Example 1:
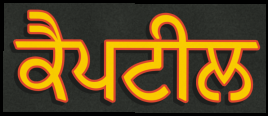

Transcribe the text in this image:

ਕੈਪਟੀਲ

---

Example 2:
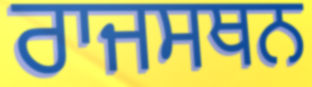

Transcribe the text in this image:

ਰਾਜਸਥਨ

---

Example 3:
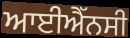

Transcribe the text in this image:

ਆਈਐੱਨਸੀ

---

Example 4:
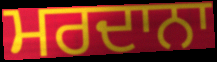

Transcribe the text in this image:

ਮਰਦਾਨਾ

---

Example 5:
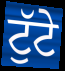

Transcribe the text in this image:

ਟੁੱਟੇ